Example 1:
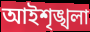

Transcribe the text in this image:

আইশৃঙ্খলা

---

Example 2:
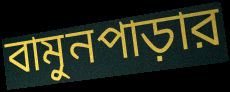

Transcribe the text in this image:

বামুনপাড়ার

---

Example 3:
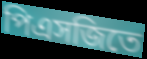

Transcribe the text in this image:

পিএসজিতে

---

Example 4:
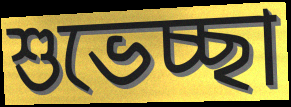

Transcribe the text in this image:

শুভেচ্ছা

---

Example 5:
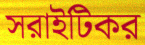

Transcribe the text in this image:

সরাইটিকর